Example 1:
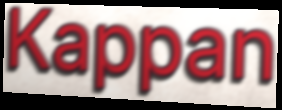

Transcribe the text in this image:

Kappan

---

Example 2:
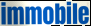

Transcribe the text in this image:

immobile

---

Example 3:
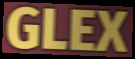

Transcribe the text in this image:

GLEX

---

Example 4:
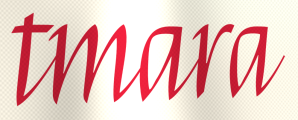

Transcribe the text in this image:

tmara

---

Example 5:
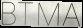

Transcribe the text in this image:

BTMA